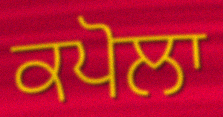
ਕਪੋਲਾ